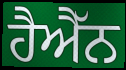
ਹੈਐੱਨ